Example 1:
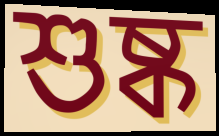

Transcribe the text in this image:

শুষ্ক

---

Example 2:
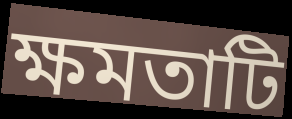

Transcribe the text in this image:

ক্ষমতাটি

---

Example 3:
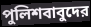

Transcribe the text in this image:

পুলিশবাবুদের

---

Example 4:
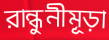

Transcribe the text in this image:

রান্ধুনীমূড়া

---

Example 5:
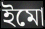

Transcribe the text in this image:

ইমো